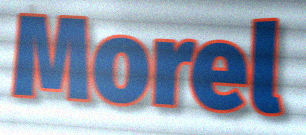
Morel